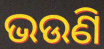
ଭଉଣି